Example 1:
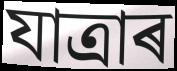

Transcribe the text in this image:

যাত্ৰাৰ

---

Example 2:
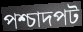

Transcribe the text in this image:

পশ্চাদপট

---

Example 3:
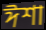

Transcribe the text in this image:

ঈশা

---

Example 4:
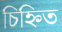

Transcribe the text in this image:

চিহ্নিত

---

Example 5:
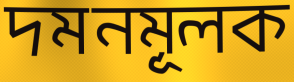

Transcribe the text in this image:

দমনমূলক